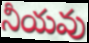
నీయవు